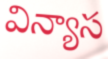
విన్యాస